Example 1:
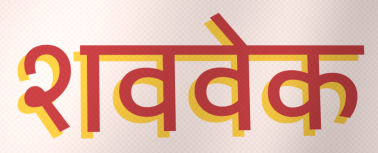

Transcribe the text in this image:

शववेक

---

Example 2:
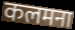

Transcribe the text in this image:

कलमना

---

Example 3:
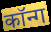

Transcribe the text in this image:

कॉन्ग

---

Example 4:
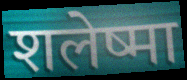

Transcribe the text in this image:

शलेष्मा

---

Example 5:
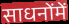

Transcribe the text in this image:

साधनोंमें